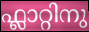
ഫ്ലാറ്റിനു